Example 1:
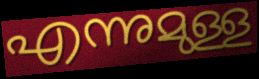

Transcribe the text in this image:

എന്നുമുള്ള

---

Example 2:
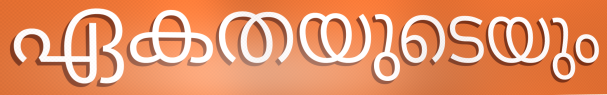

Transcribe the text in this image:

ഏകതയുടെയും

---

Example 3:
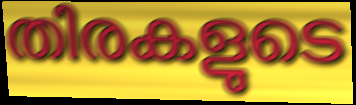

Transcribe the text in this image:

തിരകളുടെ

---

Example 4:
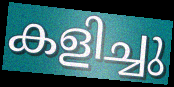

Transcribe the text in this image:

കളിച്ചു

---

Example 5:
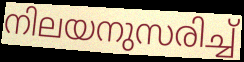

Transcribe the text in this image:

നിലയനുസരിച്ച്